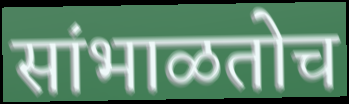
सांभाळतोच